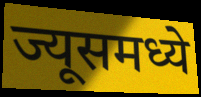
ज्यूसमध्ये